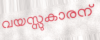
വയസ്സുകാരന്